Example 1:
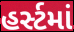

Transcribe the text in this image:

હર્સ્ટમાં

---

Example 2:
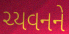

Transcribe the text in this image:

ચ્યવનને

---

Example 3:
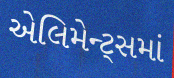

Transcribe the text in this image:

એલિમેન્ટ્સમાં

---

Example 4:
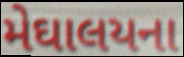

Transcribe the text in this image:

મેઘાલયના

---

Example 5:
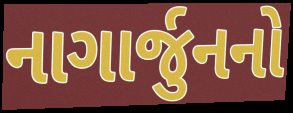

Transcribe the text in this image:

નાગાર્જુનનો